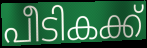
പീടികക്ക്